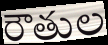
రౌతుల